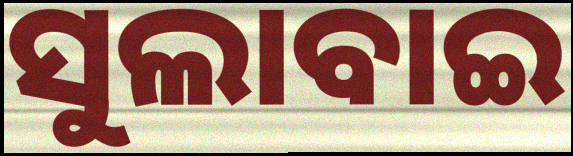
ସୁଲାବାଇ